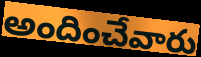
అందించేవారు